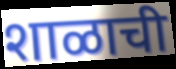
शाळाची